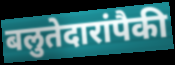
बलुतेदारांपैकी